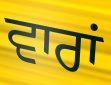
ਵਾਰਾਂ